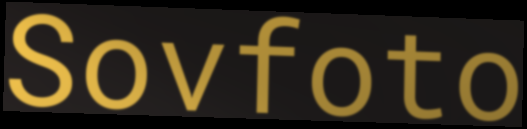
Sovfoto